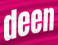
deen